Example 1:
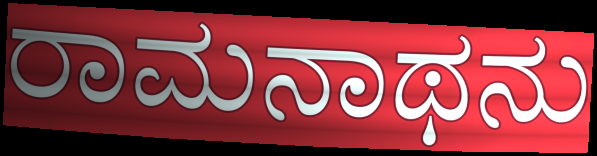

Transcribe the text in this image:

ರಾಮನಾಥನು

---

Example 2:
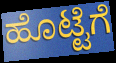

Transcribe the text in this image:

ಹೊಟ್ಟೆಗೆ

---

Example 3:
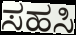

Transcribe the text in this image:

ಸಹಸಿ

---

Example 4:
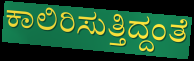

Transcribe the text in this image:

ಕಾಲಿರಿಸುತ್ತಿದ್ದಂತೆ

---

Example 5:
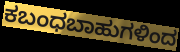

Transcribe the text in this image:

ಕಬಂಧಬಾಹುಗಳಿಂದ